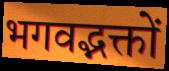
भगवद्भक्तों